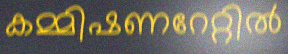
കമ്മിഷണറേറ്റിൽ